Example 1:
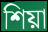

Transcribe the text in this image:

শিয়া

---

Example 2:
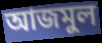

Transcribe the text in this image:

আজমুল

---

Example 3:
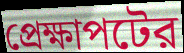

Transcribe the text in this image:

প্রেক্ষাপটের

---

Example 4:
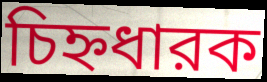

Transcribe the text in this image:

চিহ্নধারক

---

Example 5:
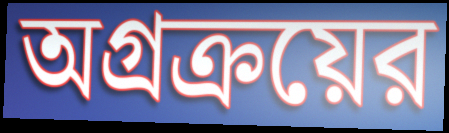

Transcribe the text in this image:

অগ্রক্রয়ের